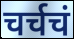
चर्चचं